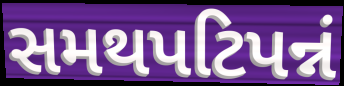
સમથપટિપન્નં